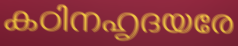
കഠിനഹൃദയരേ